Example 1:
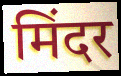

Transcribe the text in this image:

मिंदर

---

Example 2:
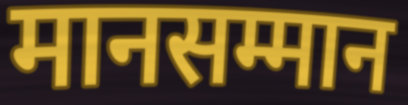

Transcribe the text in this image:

मानसम्मान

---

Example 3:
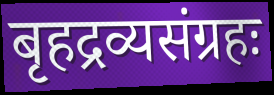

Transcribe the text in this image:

बृहद्रव्यसंग्रहः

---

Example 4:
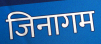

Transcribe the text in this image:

जिनागम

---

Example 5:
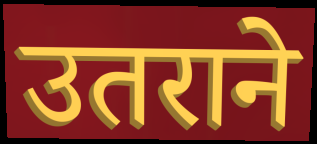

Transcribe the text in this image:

उतराने